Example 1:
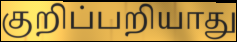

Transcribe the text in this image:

குறிப்பறியாது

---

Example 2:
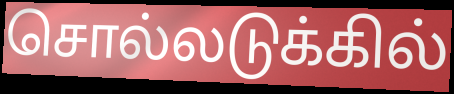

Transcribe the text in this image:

சொல்லடுக்கில்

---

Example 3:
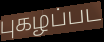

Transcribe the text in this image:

புகழப்பட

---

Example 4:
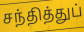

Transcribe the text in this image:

சந்தித்துப்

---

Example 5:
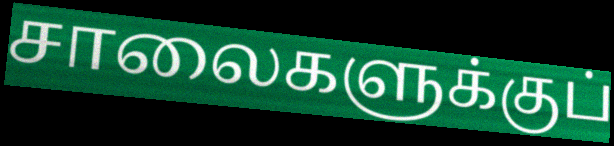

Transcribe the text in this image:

சாலைகளுக்குப்